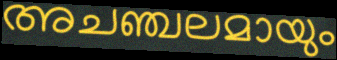
അചഞ്ചലമായും